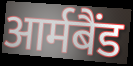
आर्मबैंड